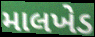
માલખેડ